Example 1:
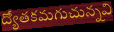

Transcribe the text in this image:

ద్యోతకమగుచున్నవి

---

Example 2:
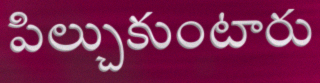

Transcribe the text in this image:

పిల్చుకుంటారు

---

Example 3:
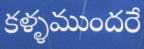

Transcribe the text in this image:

కళ్ళముందరే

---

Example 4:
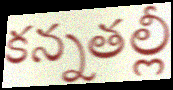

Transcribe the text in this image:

కన్నతల్లీ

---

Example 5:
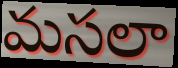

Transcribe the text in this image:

మసలా